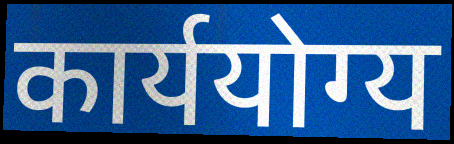
कार्ययोग्य